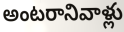
అంటరానివాళ్లు